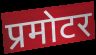
प्रमोटर